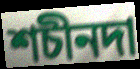
শচীনদা